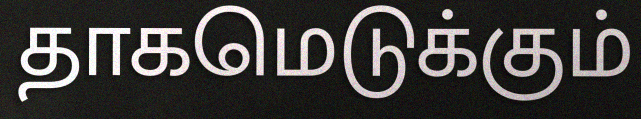
தாகமெடுக்கும்